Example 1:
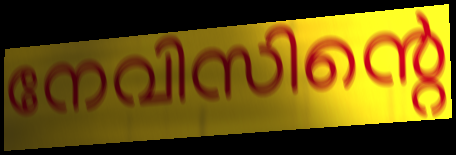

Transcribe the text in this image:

നേവിസിന്റെ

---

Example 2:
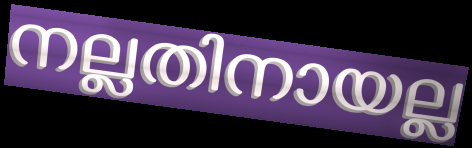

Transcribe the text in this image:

നല്ലതിനായല്ല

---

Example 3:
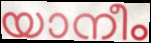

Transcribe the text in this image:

യാനീം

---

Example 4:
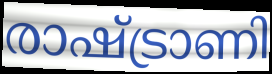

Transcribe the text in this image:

രാഷ്ട്രാണി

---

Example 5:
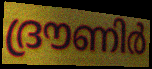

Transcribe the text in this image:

ദ്രൗണിർ